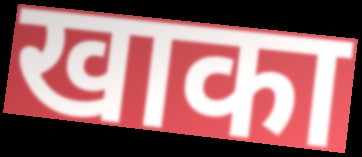
खाका